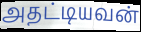
அதட்டியவன்